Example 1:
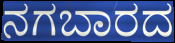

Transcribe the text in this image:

ನಗಬಾರದ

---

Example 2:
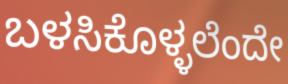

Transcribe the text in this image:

ಬಳಸಿಕೊಳ್ಳಲೆಂದೇ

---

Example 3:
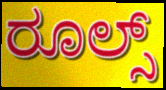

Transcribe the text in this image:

ರೂಲ್ಸ್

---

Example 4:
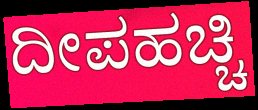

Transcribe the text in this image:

ದೀಪಹಚ್ಚಿ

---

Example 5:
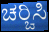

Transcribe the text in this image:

ಚರ‍್ಚಿಸಿ